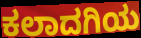
ಕಲಾದಗಿಯ